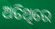
ଅତିଥିରେ